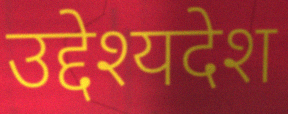
उद्देश्यदेश